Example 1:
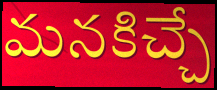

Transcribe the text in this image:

మనకిచ్చే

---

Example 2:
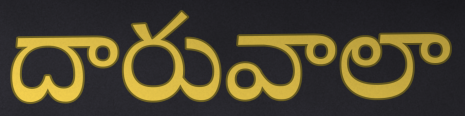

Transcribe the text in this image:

దారువాలా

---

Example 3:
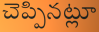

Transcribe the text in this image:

చెప్పినట్లూ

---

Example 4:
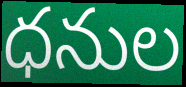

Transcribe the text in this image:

ధనుల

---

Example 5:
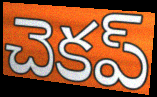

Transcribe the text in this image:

చెకప్